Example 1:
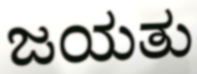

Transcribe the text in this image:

ಜಯತು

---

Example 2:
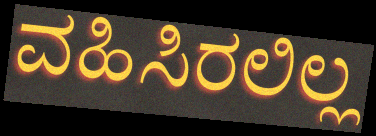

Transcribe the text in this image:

ವಹಿಸಿರಲಿಲ್ಲ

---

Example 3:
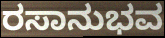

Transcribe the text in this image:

ರಸಾನುಭವ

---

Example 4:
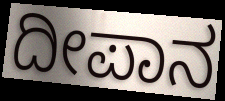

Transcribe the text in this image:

ದೀಪಾನ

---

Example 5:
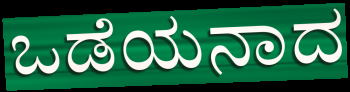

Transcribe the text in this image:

ಒಡೆಯನಾದ